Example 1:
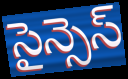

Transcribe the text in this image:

సైన్సెస్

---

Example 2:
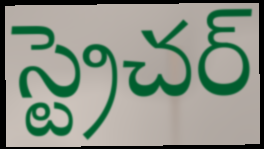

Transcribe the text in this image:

స్ట్రెచర్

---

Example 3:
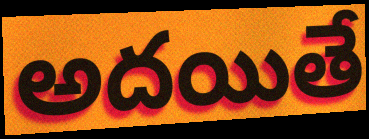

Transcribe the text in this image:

అదయితే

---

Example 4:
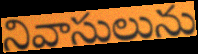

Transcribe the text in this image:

నివాసులును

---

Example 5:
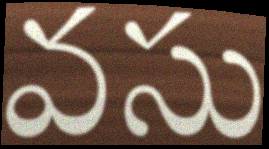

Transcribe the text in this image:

వసు